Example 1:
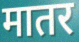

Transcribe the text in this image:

मातर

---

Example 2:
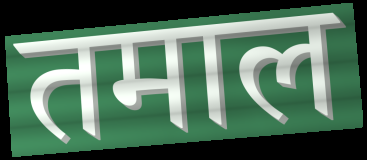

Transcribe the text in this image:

तमाल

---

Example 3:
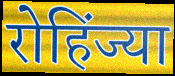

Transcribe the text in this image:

रोहिंज्या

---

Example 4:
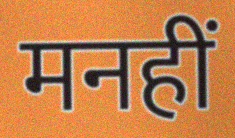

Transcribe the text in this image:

मनहीं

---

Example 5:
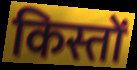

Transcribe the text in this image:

किस्तों